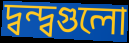
দ্বন্দ্বগুলো